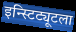
इन्स्टिट्यूटला